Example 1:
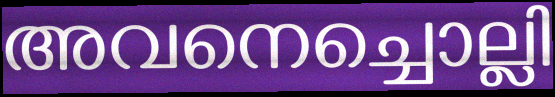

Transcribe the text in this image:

അവനെച്ചൊല്ലി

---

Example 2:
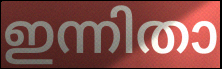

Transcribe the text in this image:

ഇന്നിതാ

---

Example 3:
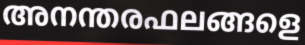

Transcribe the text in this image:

അനന്തരഫലങ്ങളെ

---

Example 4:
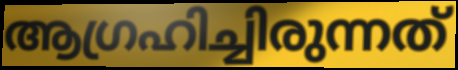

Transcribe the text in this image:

ആഗ്രഹിച്ചിരുന്നത്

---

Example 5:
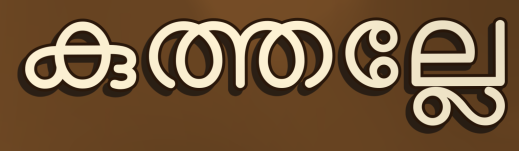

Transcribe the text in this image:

കുത്തല്ലേ